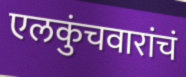
एलकुंचवारांचं